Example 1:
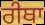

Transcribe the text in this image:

ਰੀਥਾ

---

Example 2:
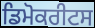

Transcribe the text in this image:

ਡਿਮੋਕਰੀਟਸ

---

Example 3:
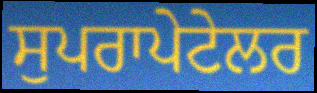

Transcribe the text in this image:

ਸੁਪਰਾਪੇਟੇਲਰ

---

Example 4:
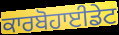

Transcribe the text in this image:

ਕਾਰਬੋਹਾਈਡੇਟ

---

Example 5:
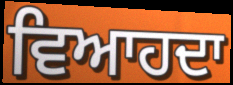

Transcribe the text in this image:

ਵਿਆਹਦਾ